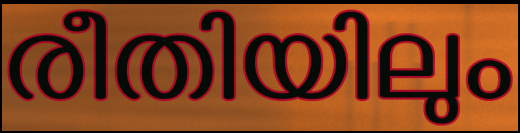
രീതിയിലും